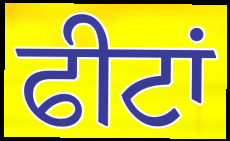
ਫੀਟਾਂ